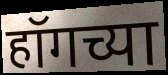
हॉगच्या